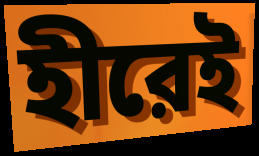
হীরেই